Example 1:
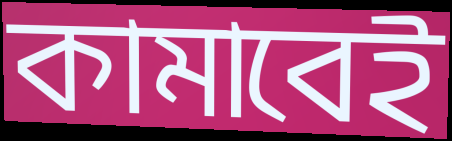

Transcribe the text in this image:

কামাবেই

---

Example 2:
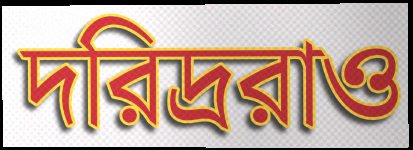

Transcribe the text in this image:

দরিদ্ররাও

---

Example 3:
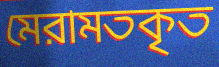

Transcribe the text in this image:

মেরামতকৃত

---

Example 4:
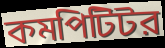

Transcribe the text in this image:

কমপিটিটর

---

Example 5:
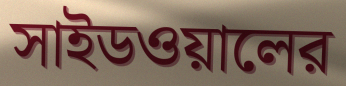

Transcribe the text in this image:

সাইডওয়ালের